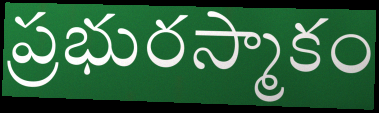
ప్రభురస్మాకం